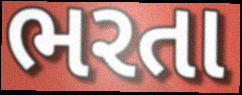
ભરતા